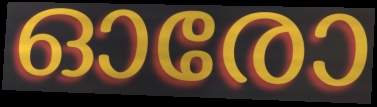
ഓരോ